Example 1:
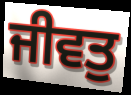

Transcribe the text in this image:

ਜੀਵਤੁ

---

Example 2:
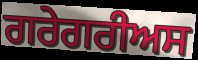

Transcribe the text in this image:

ਗਰੇਗਰੀਅਸ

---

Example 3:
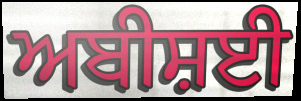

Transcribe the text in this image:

ਅਬੀਸ਼ਈ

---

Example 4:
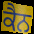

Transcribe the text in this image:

ਕੈਨ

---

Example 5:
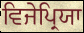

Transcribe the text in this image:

ਵਿਜੇਪ੍ਰਿਯਾ